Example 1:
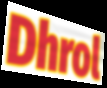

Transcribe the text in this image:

Dhrol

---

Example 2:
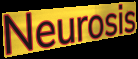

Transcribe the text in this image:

Neurosis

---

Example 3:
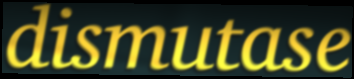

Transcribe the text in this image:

dismutase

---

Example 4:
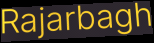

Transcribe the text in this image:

Rajarbagh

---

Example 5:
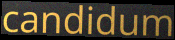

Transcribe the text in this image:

candidum